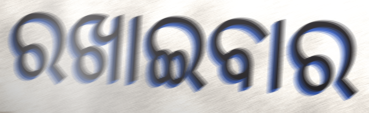
ରଖାଇବାର